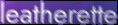
leatherette